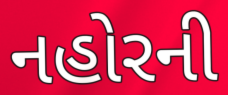
નહોરની